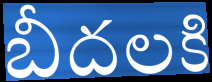
బీదలకి